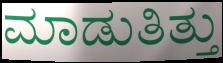
ಮಾಡುತಿತ್ತು